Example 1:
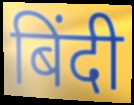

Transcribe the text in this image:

बिंदी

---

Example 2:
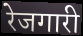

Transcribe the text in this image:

रेजगारी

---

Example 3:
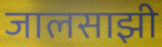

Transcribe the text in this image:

जालसाझी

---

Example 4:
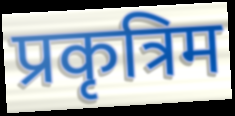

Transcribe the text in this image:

प्रकृत्रिम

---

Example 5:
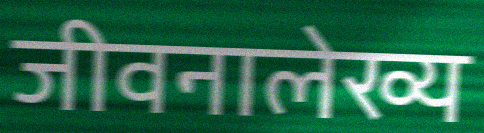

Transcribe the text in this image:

जीवनालेख्य